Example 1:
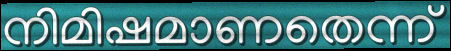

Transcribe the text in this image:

നിമിഷമാണതെന്ന്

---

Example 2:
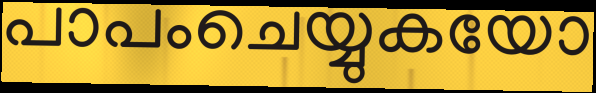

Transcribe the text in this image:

പാപംചെയ്യുകയോ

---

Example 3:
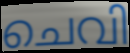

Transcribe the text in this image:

ചെവി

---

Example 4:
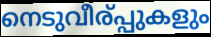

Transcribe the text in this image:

നെടുവീര്പ്പുകളും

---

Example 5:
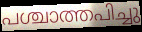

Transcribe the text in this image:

പശ്ചാത്തപിച്ചു